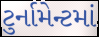
ટુર્નામેન્ટમાં